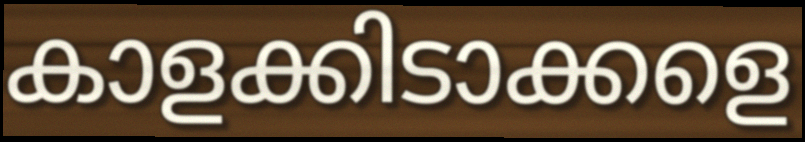
കാളക്കിടാക്കളെ